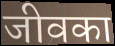
जीवका